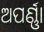
ଅପର୍ଣ୍ଣା